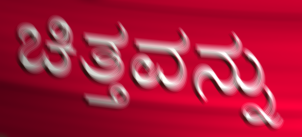
ಚಿತ್ತವನ್ನು